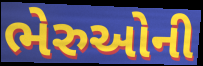
ભેરુઓની